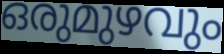
ഒരുമുഴവും